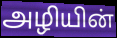
அழியின்